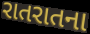
રાતરાતના